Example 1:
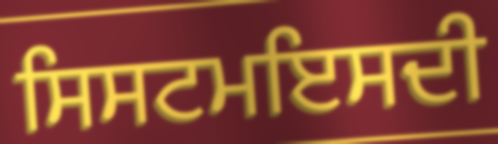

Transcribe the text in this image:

ਸਿਸਟਮਇਸਦੀ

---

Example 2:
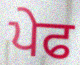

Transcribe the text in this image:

ਪੇਫ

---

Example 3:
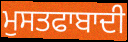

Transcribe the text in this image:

ਮੁਸਤਫਾਬਾਦੀ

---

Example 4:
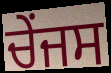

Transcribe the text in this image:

ਚੇਂਜਸ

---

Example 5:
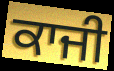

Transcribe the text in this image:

ਕਾਜੀ